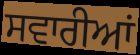
ਸਵਾਰੀਆਂ